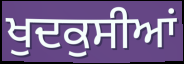
ਖੁਦਕੁਸੀਆਂ